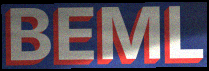
BEML